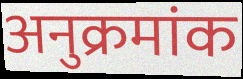
अनुक्रमांक